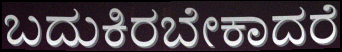
ಬದುಕಿರಬೇಕಾದರೆ